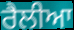
ਰੈਲੀਆ